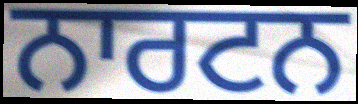
ਨਾਰਟਨ